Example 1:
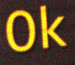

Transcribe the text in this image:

Ok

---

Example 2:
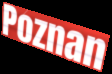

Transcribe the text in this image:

Poznan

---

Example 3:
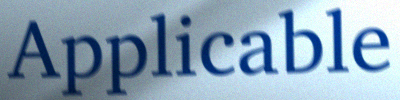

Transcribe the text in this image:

Applicable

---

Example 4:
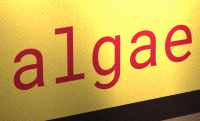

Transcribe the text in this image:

algae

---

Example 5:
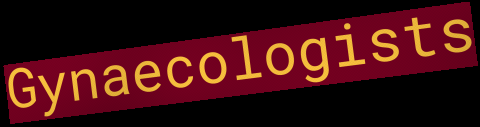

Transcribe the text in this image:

Gynaecologists